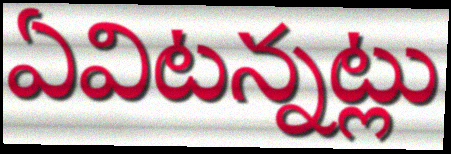
ఏవిటన్నట్లు